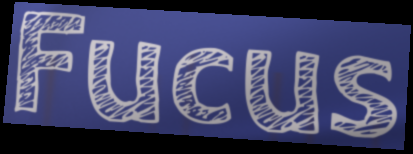
Fucus